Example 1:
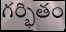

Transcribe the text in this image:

గర్భితం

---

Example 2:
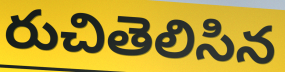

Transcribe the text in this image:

రుచితెలిసిన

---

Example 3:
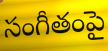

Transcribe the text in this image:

సంగీతంపై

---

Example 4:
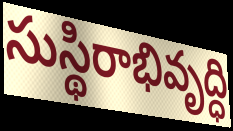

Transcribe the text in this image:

సుస్థిరాభివృద్ధి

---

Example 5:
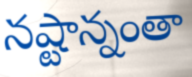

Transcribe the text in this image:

నష్టాన్నంతా